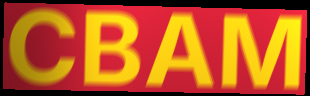
CBAM